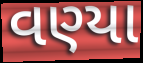
વણ્યા